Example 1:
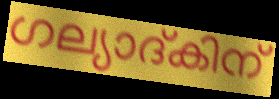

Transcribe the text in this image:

ഗല്യാദ്കിന്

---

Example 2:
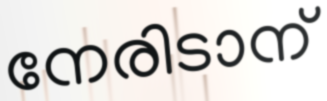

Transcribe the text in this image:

നേരിടാന്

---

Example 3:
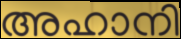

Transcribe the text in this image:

അഹാനി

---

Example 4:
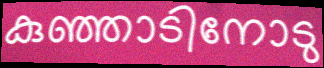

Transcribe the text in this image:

കുഞ്ഞാടിനോടു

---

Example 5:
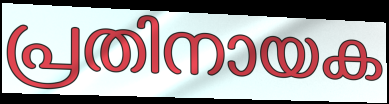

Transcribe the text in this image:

പ്രതിനായക